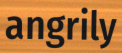
angrily